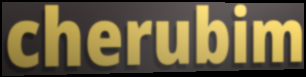
cherubim